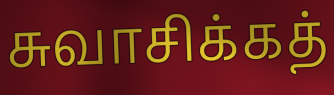
சுவாசிக்கத்